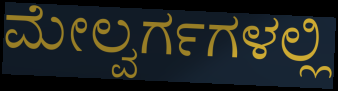
ಮೇಲ್ವರ್ಗಗಳಲ್ಲಿ